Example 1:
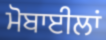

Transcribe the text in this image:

ਮੋਬਾਈਲਾਂ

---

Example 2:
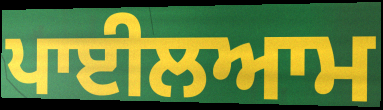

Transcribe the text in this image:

ਪਾਈਲਆਮ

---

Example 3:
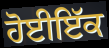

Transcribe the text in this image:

ਹੋਈਇੱਕ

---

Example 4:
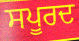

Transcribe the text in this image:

ਸਪੂਰਦ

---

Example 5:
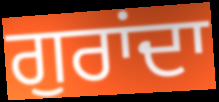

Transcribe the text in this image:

ਗੁਰਾਂਦਾ